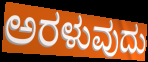
ಅರಳುವುದು